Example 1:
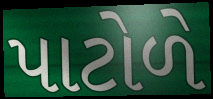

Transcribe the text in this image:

પાટોળે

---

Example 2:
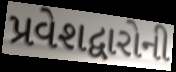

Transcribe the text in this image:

પ્રવેશદ્વારોની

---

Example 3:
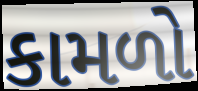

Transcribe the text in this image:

કામળો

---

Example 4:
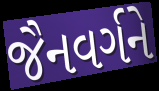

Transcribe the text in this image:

જૈનવર્ગને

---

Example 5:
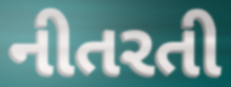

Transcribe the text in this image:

નીતરતી